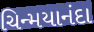
ચિન્મયાનંદા